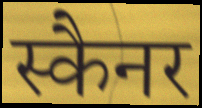
स्कैनर